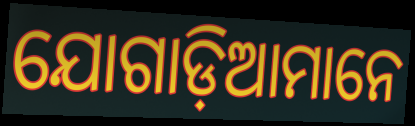
ଯୋଗାଡ଼ିଆମାନେ